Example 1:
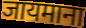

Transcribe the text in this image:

जायमाना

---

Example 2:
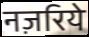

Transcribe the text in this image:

नज़रिये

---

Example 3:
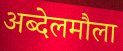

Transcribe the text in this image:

अब्देलमौला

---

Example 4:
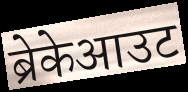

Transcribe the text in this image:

ब्रेकेआउट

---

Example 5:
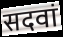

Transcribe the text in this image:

सदवां